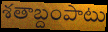
శతాబ్దంపాటు